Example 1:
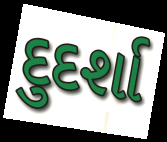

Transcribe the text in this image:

દુદર્શા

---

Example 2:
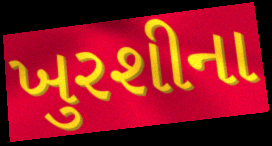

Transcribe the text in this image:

ખુરશીના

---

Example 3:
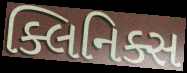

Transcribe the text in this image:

ક્લિનિક્સ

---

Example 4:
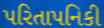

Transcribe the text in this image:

પરિતાપનિકી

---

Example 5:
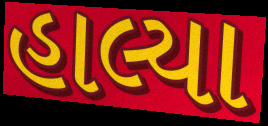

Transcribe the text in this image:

હાલ્યા